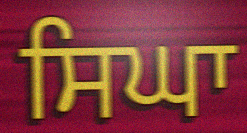
ਸਿਘਾ